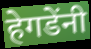
हेगडेंनी